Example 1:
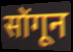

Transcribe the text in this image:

सोंगून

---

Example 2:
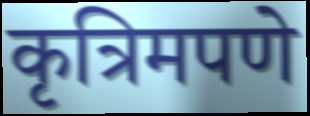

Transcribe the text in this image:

कृत्रिमपणे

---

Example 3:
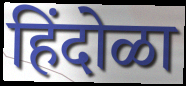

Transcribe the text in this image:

हिंदोळा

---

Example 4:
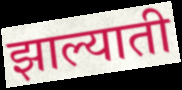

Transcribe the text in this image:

झाल्याती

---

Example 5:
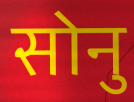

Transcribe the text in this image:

सोनु